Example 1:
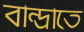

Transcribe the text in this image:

বান্দ্রাতে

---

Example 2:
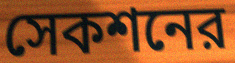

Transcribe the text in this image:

সেকশনের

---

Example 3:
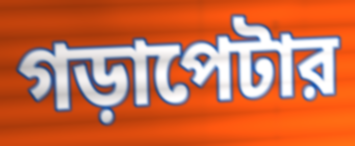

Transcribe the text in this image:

গড়াপেটার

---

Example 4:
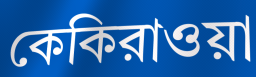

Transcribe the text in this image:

কেকিরাওয়া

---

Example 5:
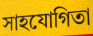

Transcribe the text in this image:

সাহযোগিতা